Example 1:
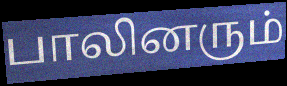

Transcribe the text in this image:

பாலினரும்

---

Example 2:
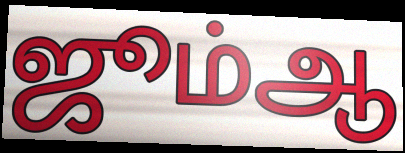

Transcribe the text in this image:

ஜூம்ஆ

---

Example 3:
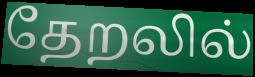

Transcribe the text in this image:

தேறலில்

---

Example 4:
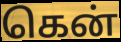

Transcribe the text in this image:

கென்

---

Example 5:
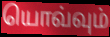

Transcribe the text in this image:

யொவ்வும்